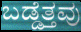
ಬಡ್ಡೆತ್ತವು